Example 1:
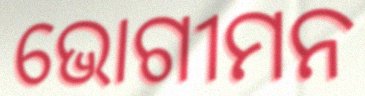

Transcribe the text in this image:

ଭୋଗୀମନ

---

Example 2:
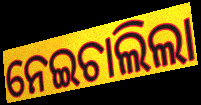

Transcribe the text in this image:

ନେଇଚାଲିଲା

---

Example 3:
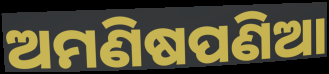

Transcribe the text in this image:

ଅମଣିଷପଣିଆ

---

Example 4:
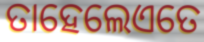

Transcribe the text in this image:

ତାହେଲେଏତେ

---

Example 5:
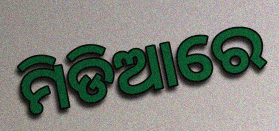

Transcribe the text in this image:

ମିଡିଆରେ